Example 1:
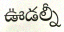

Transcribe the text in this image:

ఊడల్నీ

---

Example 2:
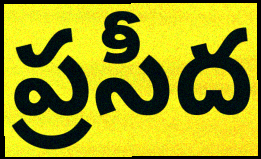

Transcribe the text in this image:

ప్రసీద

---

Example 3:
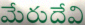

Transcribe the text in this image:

మేరుదేవి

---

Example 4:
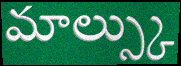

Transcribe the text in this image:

మాల్స్కు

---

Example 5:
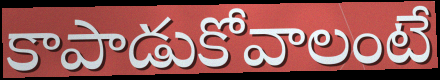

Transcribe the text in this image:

కాపాడుకోవాలంటే